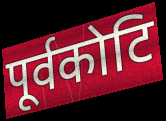
पूर्वकोटि